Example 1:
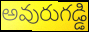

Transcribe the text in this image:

అవురుగడ్డి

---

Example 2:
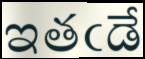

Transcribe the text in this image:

ఇతఁడే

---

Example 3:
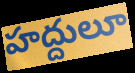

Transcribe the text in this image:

హద్దులూ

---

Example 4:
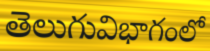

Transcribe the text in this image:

తెలుగువిభాగంలో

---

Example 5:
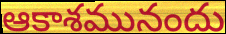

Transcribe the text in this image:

ఆకాశమునందు